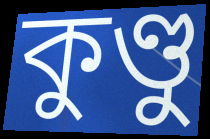
কুণ্ডু